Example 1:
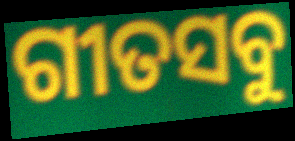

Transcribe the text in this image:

ଗୀତସବୁ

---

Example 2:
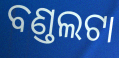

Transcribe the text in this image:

ବଣ୍ଡଲଟା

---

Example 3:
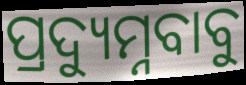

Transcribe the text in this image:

ପ୍ରଦ୍ୟୁମ୍ନବାବୁ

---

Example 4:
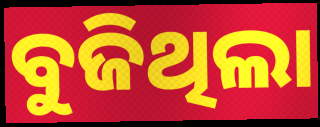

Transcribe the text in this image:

ବୁଜିଥିଲା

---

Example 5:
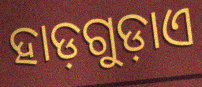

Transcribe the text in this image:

ହାଡ଼ଗୁଡ଼ାଏ